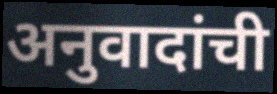
अनुवादांची